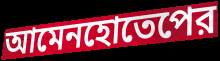
আমেনহোতেপের